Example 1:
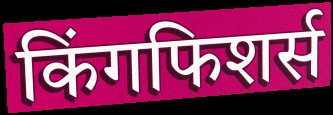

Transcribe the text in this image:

किंगफिशर्स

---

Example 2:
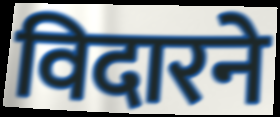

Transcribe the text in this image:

विदारने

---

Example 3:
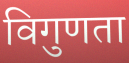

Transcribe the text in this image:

विगुणता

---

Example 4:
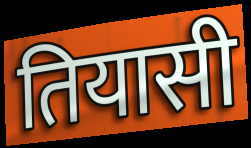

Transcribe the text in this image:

तियासी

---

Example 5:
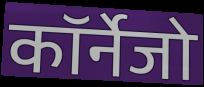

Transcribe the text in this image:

कॉर्नेजो